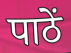
पाठें